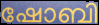
ഷോബി